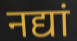
नद्यां